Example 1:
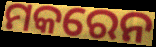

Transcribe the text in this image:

ମକରେନ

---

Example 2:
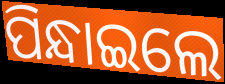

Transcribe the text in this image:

ପିନ୍ଧାଇଲେ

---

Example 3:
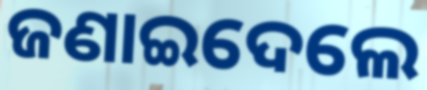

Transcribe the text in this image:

ଜଣାଇଦେଲେ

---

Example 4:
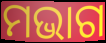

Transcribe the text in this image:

ମଭାଗ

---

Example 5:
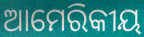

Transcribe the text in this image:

ଆମେରିକୀୟ